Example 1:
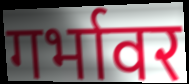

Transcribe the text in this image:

गर्भावर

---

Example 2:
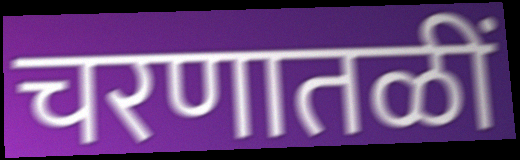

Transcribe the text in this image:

चरणातळीं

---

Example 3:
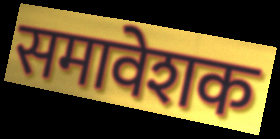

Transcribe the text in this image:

समावेशक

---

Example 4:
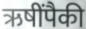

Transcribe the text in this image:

ऋषींपैकी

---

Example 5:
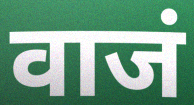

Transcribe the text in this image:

वाजं